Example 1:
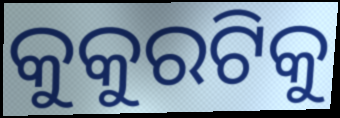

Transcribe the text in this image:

କୁକୁରଟିକୁ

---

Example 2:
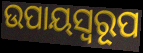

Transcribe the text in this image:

ଉପାୟସ୍ୱରୂପ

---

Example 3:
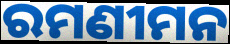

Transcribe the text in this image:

ରମଣୀମନ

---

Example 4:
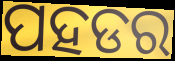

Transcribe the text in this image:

ପହଡର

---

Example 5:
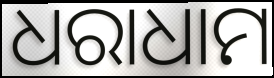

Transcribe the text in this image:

ଧରାଧାମ